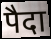
पैदा